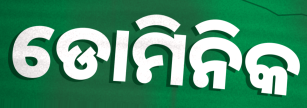
ଡୋମିନିକ